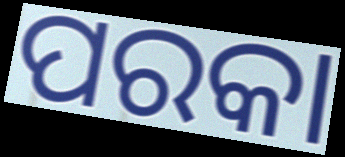
ପରକା